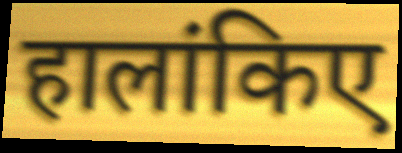
हालांकिए